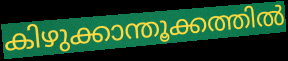
കിഴുക്കാന്തൂക്കത്തിൽ